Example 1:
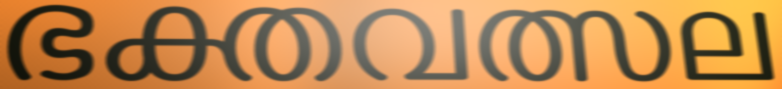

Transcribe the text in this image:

ഭക്തവത്സല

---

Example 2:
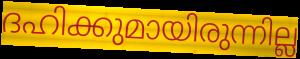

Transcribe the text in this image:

ദഹിക്കുമായിരുന്നില്ല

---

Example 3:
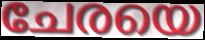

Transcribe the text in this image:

ചേരയെ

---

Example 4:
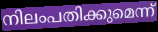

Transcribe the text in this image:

നിലംപതിക്കുമെന്ന്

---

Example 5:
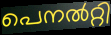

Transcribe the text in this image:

പെനൽറ്റി